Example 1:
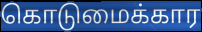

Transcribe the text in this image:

கொடுமைக்கார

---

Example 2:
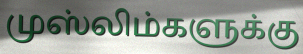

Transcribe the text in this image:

முஸ்லிம்களுக்கு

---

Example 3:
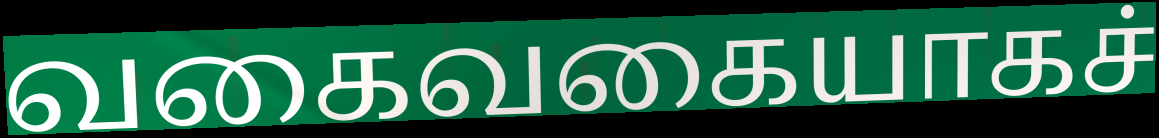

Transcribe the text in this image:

வகைவகையாகச்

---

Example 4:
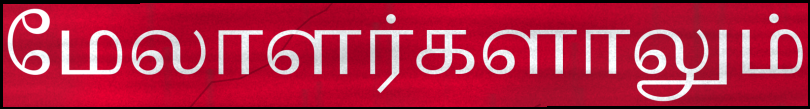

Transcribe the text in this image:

மேலாளர்களாலும்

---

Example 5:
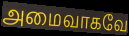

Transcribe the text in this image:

அமைவாகவே